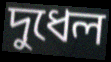
দুধেল